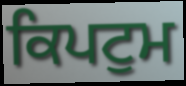
ਕਿਪਟੁਮ